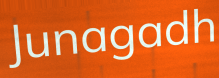
Junagadh